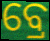
ବ୍ରେ